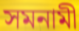
সমনামী